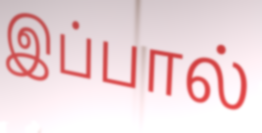
இப்பால்